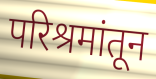
परिश्रमांतून